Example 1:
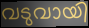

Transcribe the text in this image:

വടുവായി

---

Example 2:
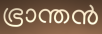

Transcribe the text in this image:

ഭ്രാന്തൻ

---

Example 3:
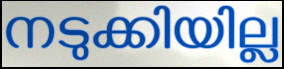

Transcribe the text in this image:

നടുക്കിയില്ല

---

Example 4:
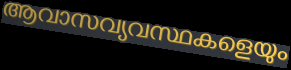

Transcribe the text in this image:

ആവാസവ്യവസ്ഥകളെയും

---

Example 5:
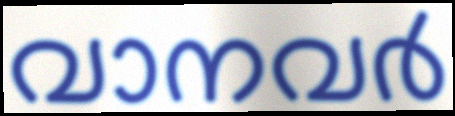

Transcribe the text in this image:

വാനവർ